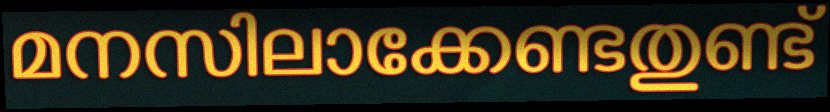
മനസിലാക്കേണ്ടതുണ്ട്